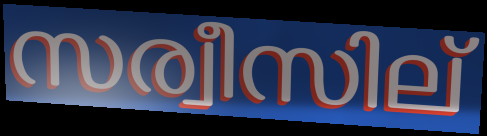
സര്വീസില്